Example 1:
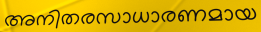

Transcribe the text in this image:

അനിതരസാധാരണമായ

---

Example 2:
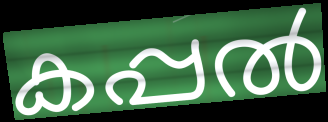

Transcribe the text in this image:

കപ്പൽ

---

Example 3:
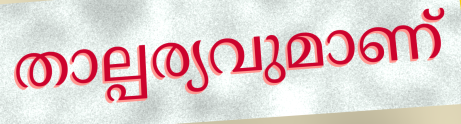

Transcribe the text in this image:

താല്പര്യവുമാണ്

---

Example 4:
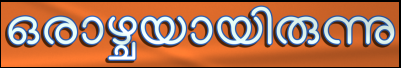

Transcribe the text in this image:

ഒരാഴ്ചയായിരുന്നു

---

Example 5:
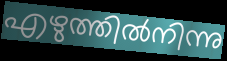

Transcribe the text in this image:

എഴുത്തിൽനിന്നു